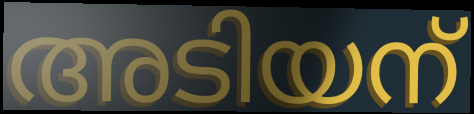
അടിയന്